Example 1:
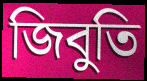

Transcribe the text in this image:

জিবুতি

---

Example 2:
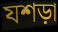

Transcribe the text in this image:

যশড়া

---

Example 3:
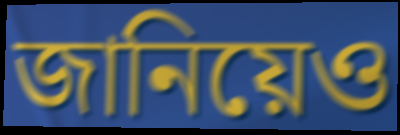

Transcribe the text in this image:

জানিয়েও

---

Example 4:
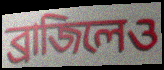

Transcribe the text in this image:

ব্রাজিলেও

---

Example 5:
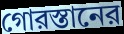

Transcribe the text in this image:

গোরস্তানের